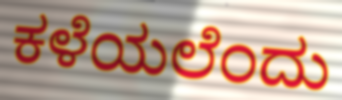
ಕಳೆಯಲೆಂದು